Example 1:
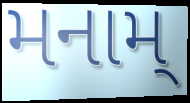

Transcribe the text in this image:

મનામ્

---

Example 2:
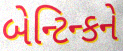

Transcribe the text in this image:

બેન્ટિન્કને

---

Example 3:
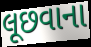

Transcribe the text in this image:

લૂછવાના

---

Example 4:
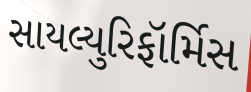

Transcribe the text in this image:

સાયલ્યુરિફૉર્મિસ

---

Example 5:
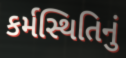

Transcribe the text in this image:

કર્મસ્થિતિનું